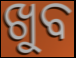
ଖୁବ